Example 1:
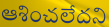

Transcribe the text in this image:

ఆశించలేదని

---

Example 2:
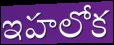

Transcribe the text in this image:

ఇహలోక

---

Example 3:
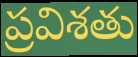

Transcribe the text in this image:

ప్రవిశతు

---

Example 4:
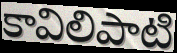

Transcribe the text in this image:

కావిలిపాటి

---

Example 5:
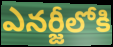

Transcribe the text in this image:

ఎనర్జీలోకి